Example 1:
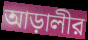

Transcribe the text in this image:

আড়ালীর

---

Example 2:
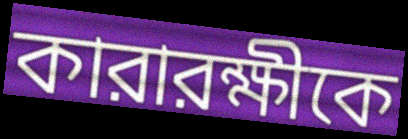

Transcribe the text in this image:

কারারক্ষীকে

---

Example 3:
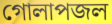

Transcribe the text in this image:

গোলাপজল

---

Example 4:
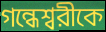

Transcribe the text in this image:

গন্ধেশ্বরীকে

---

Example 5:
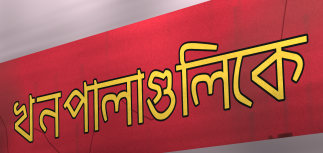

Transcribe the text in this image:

খনপালাগুলিকে